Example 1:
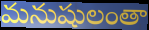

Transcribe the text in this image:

మనుషులంతా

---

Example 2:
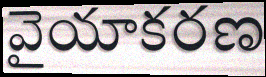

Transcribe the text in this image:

వైయాకరణ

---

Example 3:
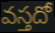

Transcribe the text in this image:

వస్తదో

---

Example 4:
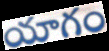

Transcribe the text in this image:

యాగం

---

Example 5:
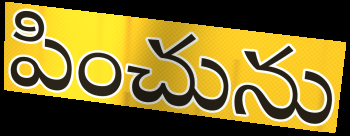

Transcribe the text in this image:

పించును